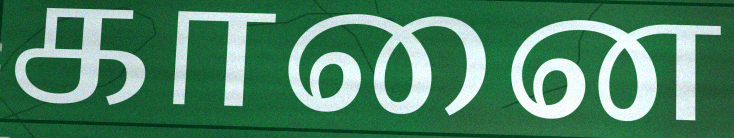
கானை